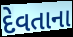
દેવતાના